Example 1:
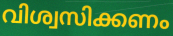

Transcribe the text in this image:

വിശ്വസിക്കണം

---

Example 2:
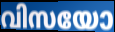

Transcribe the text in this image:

വിസയോ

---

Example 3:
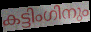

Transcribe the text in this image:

കട്ടിംഗിനും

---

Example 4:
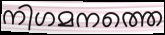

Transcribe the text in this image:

നിഗമനത്തെ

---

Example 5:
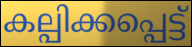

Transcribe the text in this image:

കല്പിക്കപ്പെട്ട്